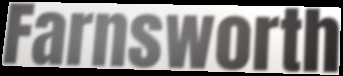
Farnsworth